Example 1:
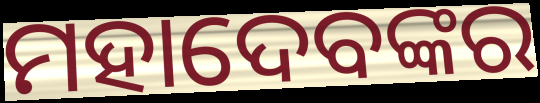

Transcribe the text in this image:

ମହାଦେବଙ୍କର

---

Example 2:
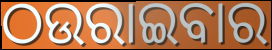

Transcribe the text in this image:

ଠଉରାଇବାର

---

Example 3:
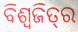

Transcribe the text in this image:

ବିଶ୍ୱଜିତ୍‌ର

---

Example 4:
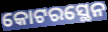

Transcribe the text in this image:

କୋଟରସ୍ଥେନ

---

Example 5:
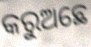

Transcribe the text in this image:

କରୁଅଛେ